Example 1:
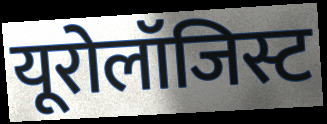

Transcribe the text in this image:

यूरोलॉजिस्ट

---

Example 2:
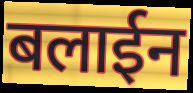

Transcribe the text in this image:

बलाईन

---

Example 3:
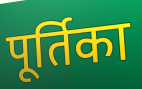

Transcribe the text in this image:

पूर्तिका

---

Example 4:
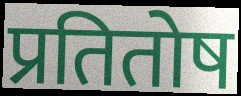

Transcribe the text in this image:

प्रतितोष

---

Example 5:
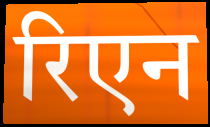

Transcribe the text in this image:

रिएन